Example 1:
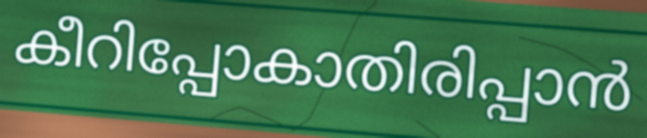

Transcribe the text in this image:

കീറിപ്പോകാതിരിപ്പാൻ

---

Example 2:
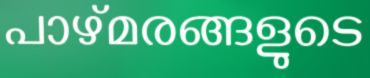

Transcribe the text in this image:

പാഴ്മരങ്ങളുടെ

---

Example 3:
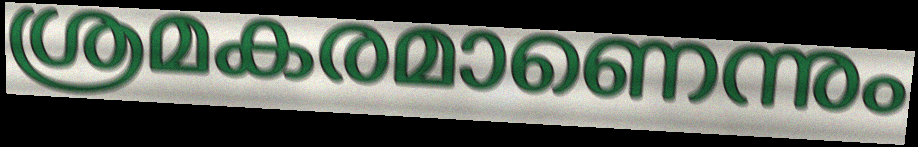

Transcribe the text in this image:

ശ്രമകരമാണെന്നും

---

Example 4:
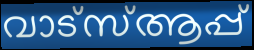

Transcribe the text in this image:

വാട്സ്ആപ്പ്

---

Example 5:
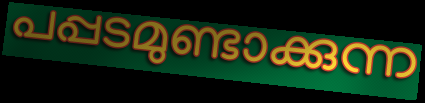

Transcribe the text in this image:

പപ്പടമുണ്ടാക്കുന്ന